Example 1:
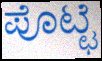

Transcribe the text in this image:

ಪೊಟ್ಟೆ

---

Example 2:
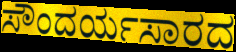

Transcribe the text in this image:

ಸೌಂದರ್ಯಸಾರದ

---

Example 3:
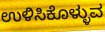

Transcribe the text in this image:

ಉಳಿಸಿಕೊಳ್ಳುವ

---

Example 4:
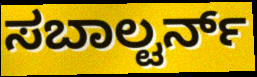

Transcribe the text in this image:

ಸಬಾಲ್ಟರ್ನ್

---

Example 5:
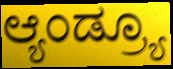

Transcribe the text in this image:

ಆ್ಯಂಡ್ರ್ಯೂ